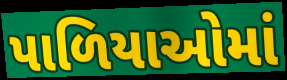
પાળિયાઓમાં